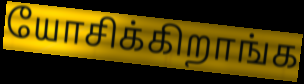
யோசிக்கிறாங்க